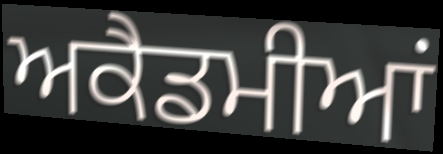
ਅਕੈਡਮੀਆਂ